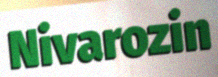
Nivarozin